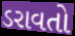
ડરાવતો